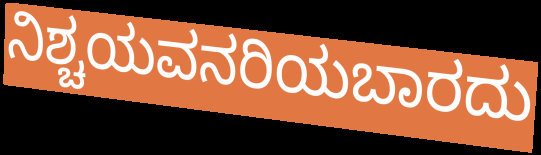
ನಿಶ್ಚಯವನರಿಯಬಾರದು